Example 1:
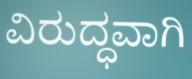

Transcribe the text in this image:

ವಿರುದ್ಧವಾಗಿ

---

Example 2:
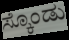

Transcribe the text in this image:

ಸ್ಕೊಂಡು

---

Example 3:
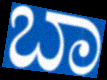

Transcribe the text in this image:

ಬಾ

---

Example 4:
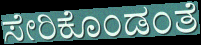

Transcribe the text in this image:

ಸೇರಿಕೊಂಡಂತೆ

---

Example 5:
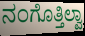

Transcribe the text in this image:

ನಂಗೊತ್ತಿಲ್ವಾ